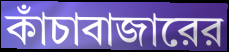
কাঁচাবাজারের